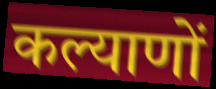
कल्याणों